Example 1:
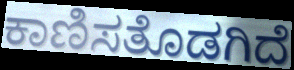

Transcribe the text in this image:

ಕಾಣಿಸತೊಡಗಿದೆ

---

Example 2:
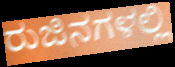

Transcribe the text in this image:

ರುಜಿನಗಳಲ್ಲಿ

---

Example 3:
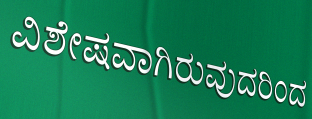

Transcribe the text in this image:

ವಿಶೇಷವಾಗಿರುವುದರಿಂದ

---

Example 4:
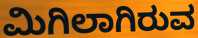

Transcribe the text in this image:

ಮಿಗಿಲಾಗಿರುವ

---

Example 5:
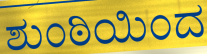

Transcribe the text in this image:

ಶುಂಠಿಯಿಂದ